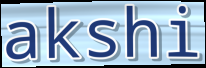
akshi